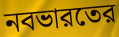
নবভারতের